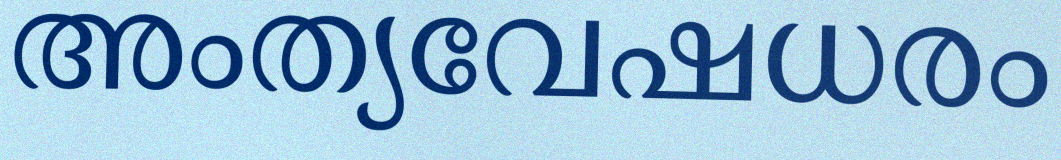
അംത്യവേഷധരം